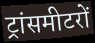
ट्रांसमीटरों